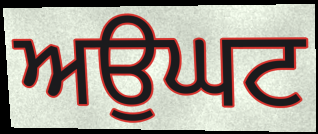
ਅਉਘਟ